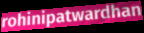
rohinipatwardhan